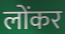
लोंकर